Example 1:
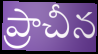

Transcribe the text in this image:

ప్రాచీన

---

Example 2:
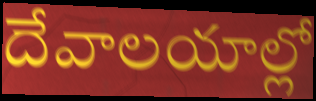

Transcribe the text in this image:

దేవాలయాల్లో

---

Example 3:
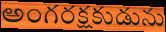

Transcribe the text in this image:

అంగరక్షకుడును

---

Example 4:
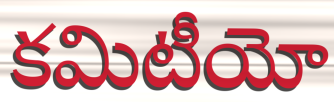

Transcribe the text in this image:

కమిటీయో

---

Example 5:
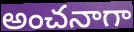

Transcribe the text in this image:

అంచనాగా